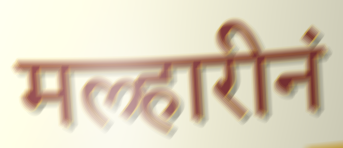
मल्हारीनं